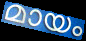
മായം